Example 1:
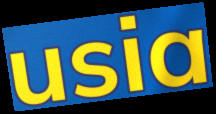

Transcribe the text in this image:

usia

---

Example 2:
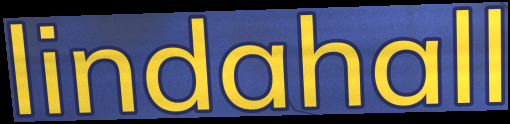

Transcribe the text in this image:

lindahall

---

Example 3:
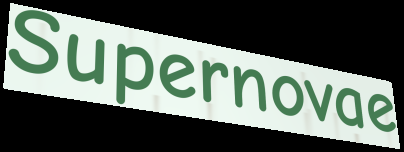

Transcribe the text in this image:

Supernovae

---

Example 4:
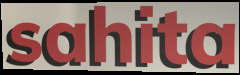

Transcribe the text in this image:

sahita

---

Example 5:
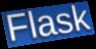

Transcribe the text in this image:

Flask